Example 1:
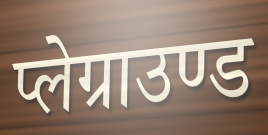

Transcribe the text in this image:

प्लेग्राउण्ड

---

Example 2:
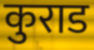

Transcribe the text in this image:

कुराड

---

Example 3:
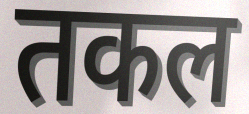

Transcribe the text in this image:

तकल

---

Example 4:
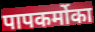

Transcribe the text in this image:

पापकर्मोका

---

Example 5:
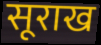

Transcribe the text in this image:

सूराख